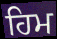
ਹਿਮ